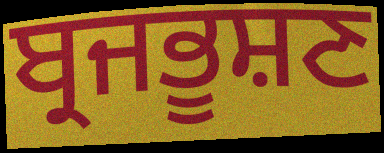
ਬ੍ਰਜਭੂਸ਼ਣ